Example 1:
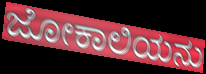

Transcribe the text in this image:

ಜೋಕಾಲಿಯನು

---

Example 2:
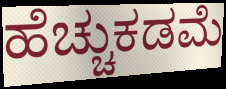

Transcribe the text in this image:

ಹೆಚ್ಚುಕಡಮೆ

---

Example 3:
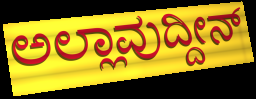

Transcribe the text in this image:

ಅಲ್ಲಾವುದ್ದೀನ್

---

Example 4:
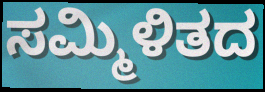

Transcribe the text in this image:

ಸಮ್ಮಿಳಿತದ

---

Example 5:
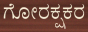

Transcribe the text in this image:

ಗೋರಕ್ಷಕರ